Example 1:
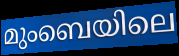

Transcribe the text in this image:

മുംബെയിലെ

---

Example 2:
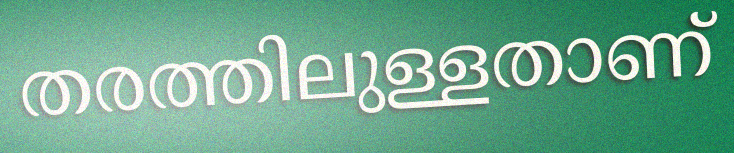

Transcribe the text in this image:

തരത്തിലുള്ളതാണ്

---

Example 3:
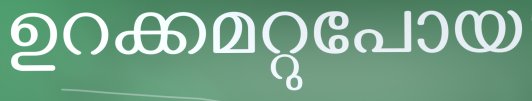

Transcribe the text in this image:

ഉറക്കമറ്റുപോയ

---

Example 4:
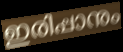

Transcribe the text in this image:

ഇരിപ്പാനും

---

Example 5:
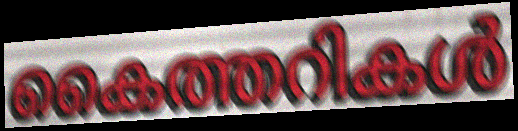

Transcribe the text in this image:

കൈത്തറികൾ